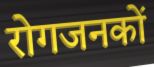
रोगजनकों